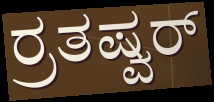
ರ್ರತಷ್ವರ್